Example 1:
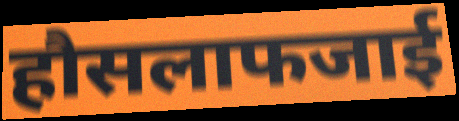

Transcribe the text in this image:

हौसलाफजाई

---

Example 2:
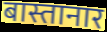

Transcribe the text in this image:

बास्तानार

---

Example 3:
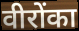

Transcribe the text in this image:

वीरोंका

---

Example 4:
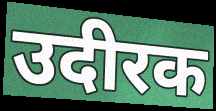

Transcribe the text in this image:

उदीरक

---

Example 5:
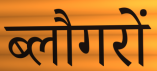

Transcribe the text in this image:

ब्लौगरों